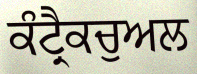
ਕੰਟ੍ਰੈਕਚੁਅਲ